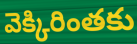
వెక్కిరింతకు